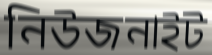
নিউজনাইট